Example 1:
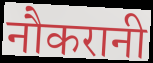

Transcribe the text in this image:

नौकरानी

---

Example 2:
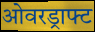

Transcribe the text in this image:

ओवरड्राफ्ट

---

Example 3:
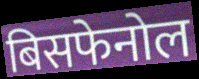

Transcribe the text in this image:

बिसफेनोल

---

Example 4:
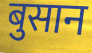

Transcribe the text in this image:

बुसान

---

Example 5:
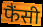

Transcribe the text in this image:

फैंसी